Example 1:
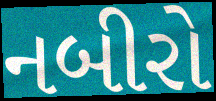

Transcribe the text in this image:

નબીરો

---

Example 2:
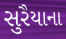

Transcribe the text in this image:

સુરૈયાના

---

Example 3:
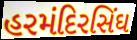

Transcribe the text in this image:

હરમંદિરસિંઘ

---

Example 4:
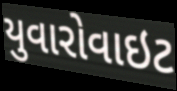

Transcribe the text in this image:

યુવારોવાઇટ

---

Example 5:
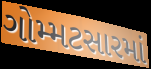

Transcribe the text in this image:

ગોમ્મટસારમાં